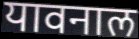
यावनाल